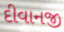
દીવાનજી